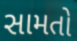
સામતો